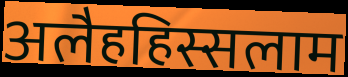
अलैहहिस्सलाम